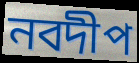
নবদীপ